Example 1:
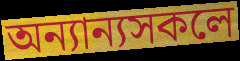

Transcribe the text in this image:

অন্যান্যসকলে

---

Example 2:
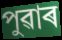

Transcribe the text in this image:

পুৱাৰ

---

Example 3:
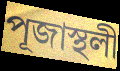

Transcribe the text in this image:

পূজাস্থলী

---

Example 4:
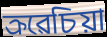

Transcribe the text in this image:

ক্ৰৱেচিয়া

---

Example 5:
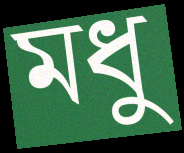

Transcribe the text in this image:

মধু